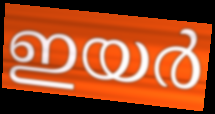
ഇയർ